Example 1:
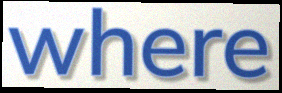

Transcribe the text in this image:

where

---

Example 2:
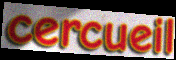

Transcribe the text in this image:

cercueil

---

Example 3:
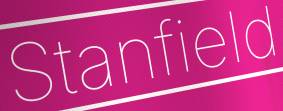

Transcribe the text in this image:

Stanfield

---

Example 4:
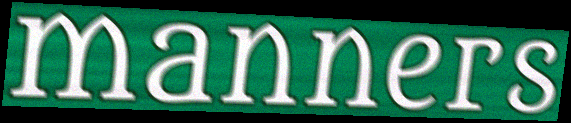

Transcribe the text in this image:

manners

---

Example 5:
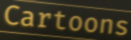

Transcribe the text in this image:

Cartoons